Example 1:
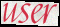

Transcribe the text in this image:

user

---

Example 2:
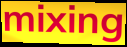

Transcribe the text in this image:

mixing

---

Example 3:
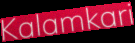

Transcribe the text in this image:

Kalamkari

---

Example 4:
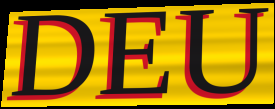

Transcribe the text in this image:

DEU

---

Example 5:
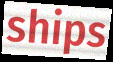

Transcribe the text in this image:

ships